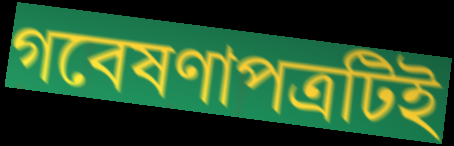
গবেষণাপত্রটিই